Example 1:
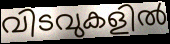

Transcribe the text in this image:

വിടവുകളിൽ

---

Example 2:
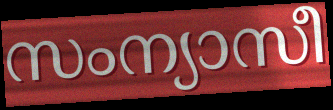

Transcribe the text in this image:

സംന്യാസീ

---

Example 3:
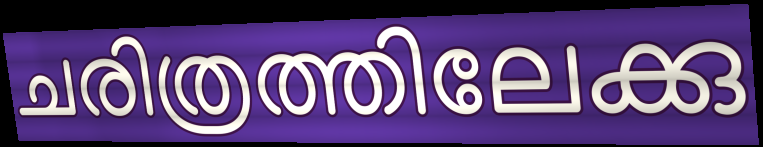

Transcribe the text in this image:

ചരിത്രത്തിലേക്കു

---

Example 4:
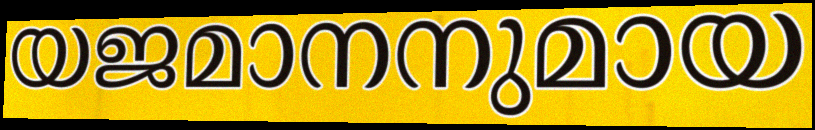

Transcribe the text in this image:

യജമാനനുമായ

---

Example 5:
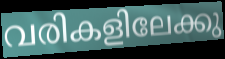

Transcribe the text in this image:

വരികളിലേക്കു